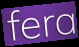
fera